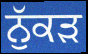
ਨੁੱਕਡ਼